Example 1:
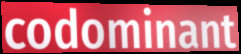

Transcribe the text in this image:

codominant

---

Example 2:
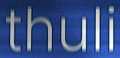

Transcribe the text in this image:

thuli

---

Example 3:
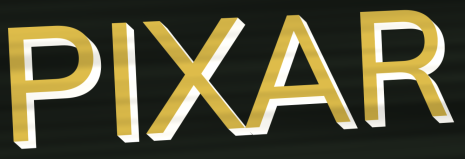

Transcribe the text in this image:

PIXAR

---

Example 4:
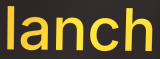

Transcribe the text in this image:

lanch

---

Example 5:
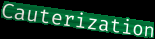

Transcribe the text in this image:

Cauterization